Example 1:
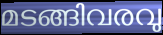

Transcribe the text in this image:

മടങ്ങിവരവു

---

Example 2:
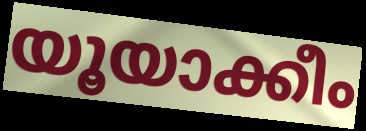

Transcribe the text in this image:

യൂയാക്കീം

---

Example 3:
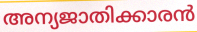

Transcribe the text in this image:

അന്യജാതിക്കാരൻ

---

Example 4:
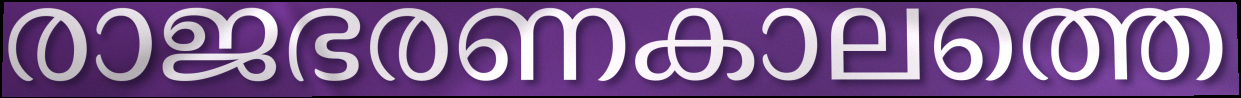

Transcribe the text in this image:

രാജഭരണകാലത്തെ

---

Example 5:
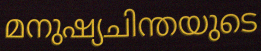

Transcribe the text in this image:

മനുഷ്യചിന്തയുടെ